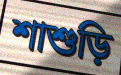
শাশুড়ি